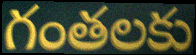
గంతలకు